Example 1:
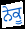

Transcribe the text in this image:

ਨੇਕੂ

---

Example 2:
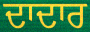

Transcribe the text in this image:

ਦਾਦਾਰ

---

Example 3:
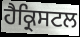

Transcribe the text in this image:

ਹੈਕ੍ਰਿਸਟਲ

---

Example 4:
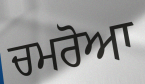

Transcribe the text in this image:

ਚਮਰੋਆ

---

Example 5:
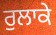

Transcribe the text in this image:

ਰੁਲਾਕੇ